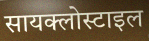
सायक्लोस्टाइल